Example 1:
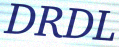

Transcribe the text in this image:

DRDL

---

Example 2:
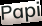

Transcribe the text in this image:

Papi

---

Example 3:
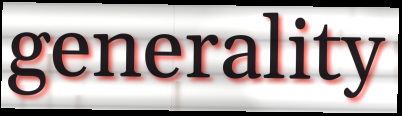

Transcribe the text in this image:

generality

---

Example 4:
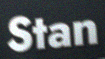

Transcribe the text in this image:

Stan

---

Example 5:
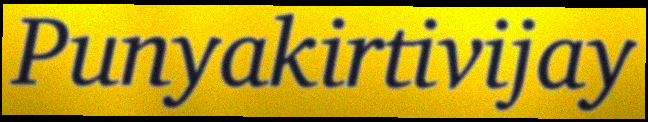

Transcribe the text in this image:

Punyakirtivijay